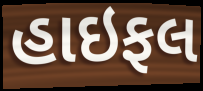
હાઇફલ